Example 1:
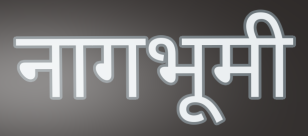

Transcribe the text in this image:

नागभूमी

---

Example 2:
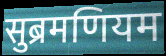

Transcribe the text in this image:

सुब्रमणियम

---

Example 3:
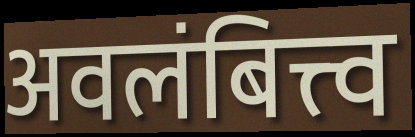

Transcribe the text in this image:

अवलंबित्त्व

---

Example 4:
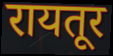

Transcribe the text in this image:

रायतूर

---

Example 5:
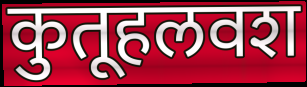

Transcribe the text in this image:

कुतूहलवश